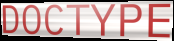
DOCTYPE